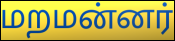
மறமன்னர்